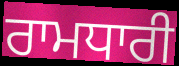
ਰਾਮਧਾਰੀ